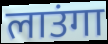
लाउंगा